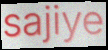
sajiye